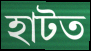
হাটত